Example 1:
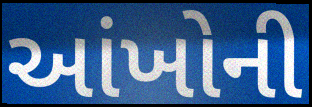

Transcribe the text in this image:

આંખોની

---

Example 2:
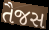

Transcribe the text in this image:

તૈજસ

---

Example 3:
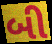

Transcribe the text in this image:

બી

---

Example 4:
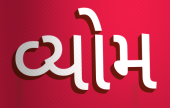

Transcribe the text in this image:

વ્યોમ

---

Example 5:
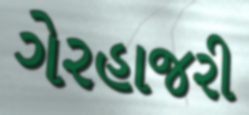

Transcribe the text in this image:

ગેરહાજરી